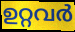
ഉറ്റവർ